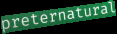
preternatural